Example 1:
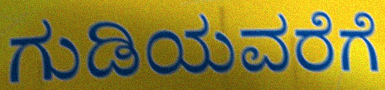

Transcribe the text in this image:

ಗುಡಿಯವರೆಗೆ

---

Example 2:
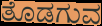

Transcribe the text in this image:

ತೊಡಗುವ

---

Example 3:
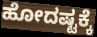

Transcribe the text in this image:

ಹೋದಷ್ಟಕ್ಕೆ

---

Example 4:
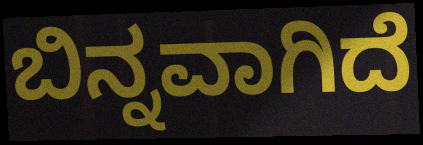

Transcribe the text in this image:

ಬಿನ್ನವಾಗಿದೆ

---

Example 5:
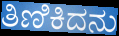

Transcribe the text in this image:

ತಿಣಿಕಿದನು